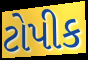
ટોપીક